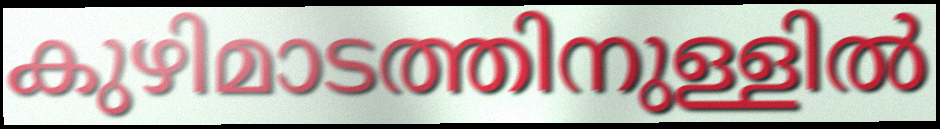
കുഴിമാടത്തിനുള്ളിൽ